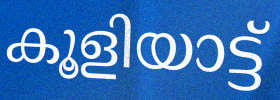
കൂളിയാട്ട്